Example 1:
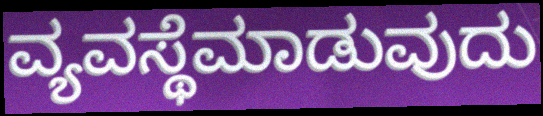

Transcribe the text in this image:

ವ್ಯವಸ್ಥೆಮಾಡುವುದು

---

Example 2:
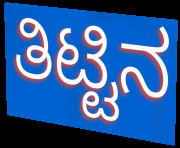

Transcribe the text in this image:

ತಿಟ್ಟಿನ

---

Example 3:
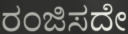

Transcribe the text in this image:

ರಂಜಿಸದೇ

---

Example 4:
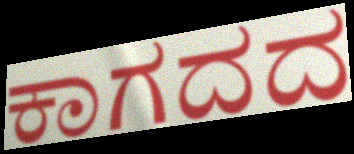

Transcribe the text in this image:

ಕಾಗದದ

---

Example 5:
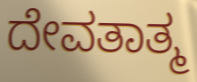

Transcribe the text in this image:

ದೇವತಾತ್ಮ